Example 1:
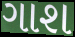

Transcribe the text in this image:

ગાશ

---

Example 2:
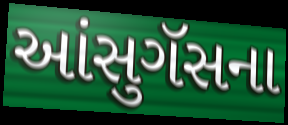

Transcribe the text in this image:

આંસુગૅસના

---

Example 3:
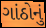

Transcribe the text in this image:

ગાંઠોનું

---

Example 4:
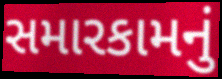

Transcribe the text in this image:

સમારકામનું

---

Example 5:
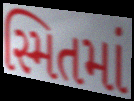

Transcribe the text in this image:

સ્મિતમાં